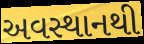
અવસ્થાનથી